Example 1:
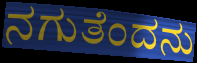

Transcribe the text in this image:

ನಗುತೆಂದನು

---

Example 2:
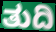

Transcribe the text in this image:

ತುದಿ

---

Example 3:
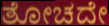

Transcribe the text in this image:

ತೋಚದೇ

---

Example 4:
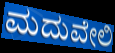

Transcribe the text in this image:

ಮದುವೇಲಿ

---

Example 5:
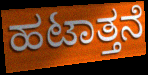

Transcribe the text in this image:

ಹಟಾತ್ತನೆ